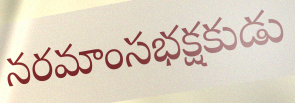
నరమాంసభక్షకుడు